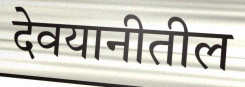
देवयानीतील